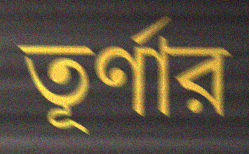
তূর্ণার